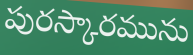
పురస్కారమును